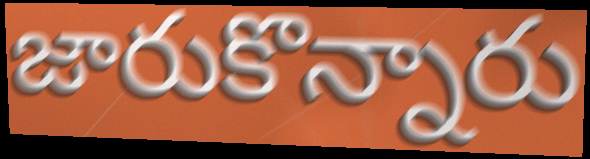
జారుకొన్నారు